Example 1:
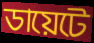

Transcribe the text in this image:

ডায়েটে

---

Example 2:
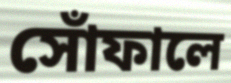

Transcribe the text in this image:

সোঁফালে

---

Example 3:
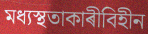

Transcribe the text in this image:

মধ্যস্থতাকাৰীবিহীন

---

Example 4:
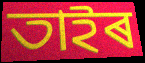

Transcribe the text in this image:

তাইৰ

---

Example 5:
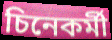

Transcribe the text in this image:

চিনেকৰ্মী